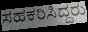
ಸಹಕರಿಸಿದ್ದರು